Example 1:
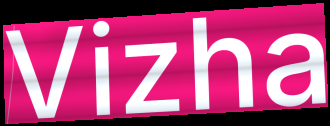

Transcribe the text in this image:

Vizha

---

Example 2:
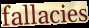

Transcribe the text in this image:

fallacies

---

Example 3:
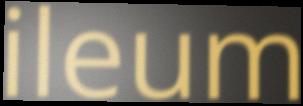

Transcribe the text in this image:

ileum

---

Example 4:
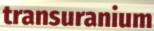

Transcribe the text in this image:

transuranium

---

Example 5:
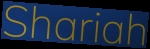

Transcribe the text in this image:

Shariah